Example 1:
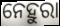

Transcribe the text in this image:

ନେହୁରା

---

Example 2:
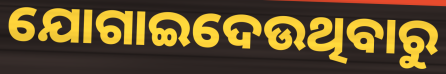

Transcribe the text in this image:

ଯୋଗାଇଦେଉଥିବାରୁ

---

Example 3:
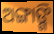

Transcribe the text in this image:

ଅଙ୍ଗାଙ୍ଗି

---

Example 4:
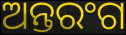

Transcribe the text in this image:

ଅନ୍ତରଂଗ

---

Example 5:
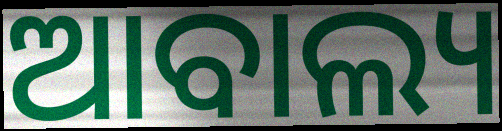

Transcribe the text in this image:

ଆବାଲ୍ୟ